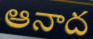
ఆనాద